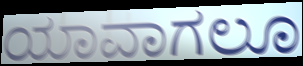
ಯಾವಾಗಲೂ